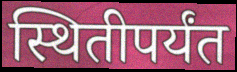
स्थितीपर्यंत